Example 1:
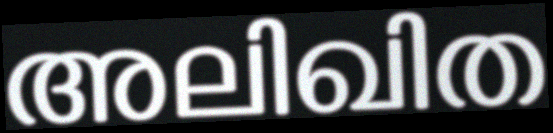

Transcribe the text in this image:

അലിഖിത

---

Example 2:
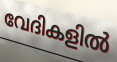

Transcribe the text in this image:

വേദികളിൽ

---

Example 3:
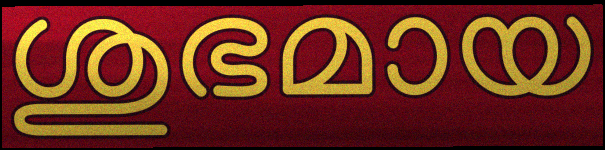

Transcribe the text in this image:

ശുഭമായ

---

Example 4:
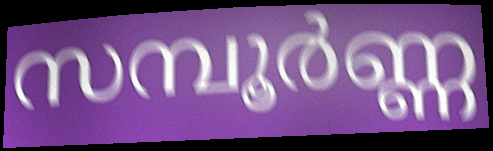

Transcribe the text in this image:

സമ്പൂർണ്ണ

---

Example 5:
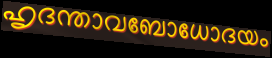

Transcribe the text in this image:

ഹൃദന്താവബോധോദയം